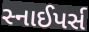
સ્નાઈપર્સ